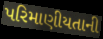
પરિમાણીયતાની